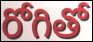
రోగితో